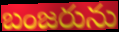
బంజరును